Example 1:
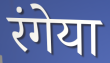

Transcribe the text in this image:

रंगेया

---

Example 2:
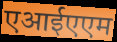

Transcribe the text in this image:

एआईएएम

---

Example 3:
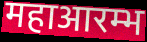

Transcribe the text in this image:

महाआरम्भ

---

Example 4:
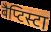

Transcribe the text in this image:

बैप्टिस्टा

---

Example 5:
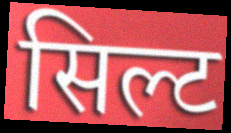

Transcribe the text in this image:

सिल्ट